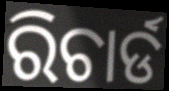
ରିଚାର୍ଡ